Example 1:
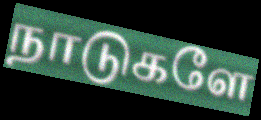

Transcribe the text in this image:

நாடுகளே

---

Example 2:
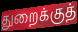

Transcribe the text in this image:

துறைக்குத்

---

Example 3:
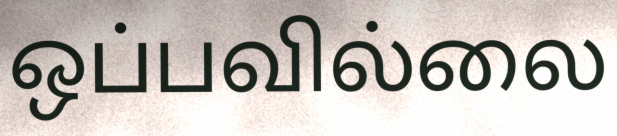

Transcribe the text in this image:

ஒப்பவில்லை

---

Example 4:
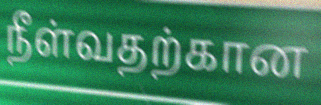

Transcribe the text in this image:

நீள்வதற்கான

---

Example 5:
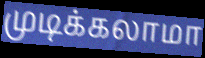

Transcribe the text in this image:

முடிக்கலாமா